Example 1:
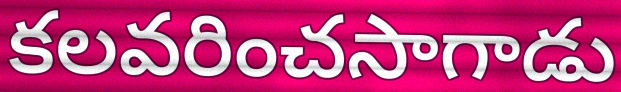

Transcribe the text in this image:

కలవరించసాగాడు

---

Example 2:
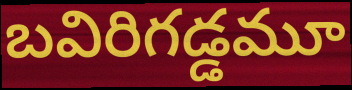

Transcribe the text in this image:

బవిరిగడ్డమూ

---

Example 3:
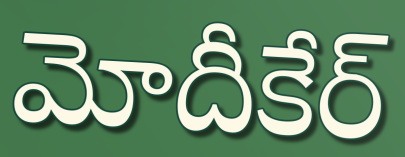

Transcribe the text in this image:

మోదీకేర్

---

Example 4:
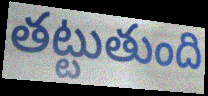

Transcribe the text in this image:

తట్టుతుంది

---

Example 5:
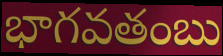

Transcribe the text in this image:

భాగవతంబు